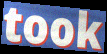
took